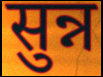
सुन्न